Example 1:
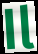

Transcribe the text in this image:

Il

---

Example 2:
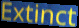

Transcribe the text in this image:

Extinct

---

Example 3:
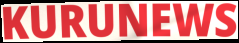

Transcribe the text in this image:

KURUNEWS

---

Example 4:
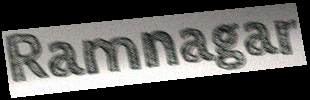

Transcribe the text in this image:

Ramnagar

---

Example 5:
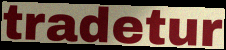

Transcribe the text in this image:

tradetur